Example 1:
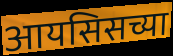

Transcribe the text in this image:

आयसिसच्या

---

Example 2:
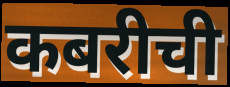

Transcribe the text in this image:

कबरीची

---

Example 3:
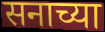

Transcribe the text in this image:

सनाच्या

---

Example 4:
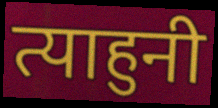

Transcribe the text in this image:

त्याहुनी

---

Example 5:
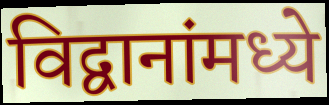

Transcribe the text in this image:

विद्वानांमध्ये